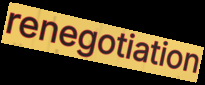
renegotiation